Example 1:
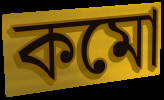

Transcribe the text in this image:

কমো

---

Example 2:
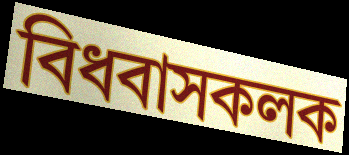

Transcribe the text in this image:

বিধবাসকলক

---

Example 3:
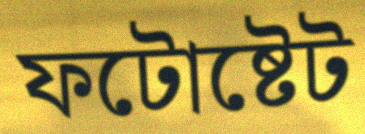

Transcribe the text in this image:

ফটোষ্টেট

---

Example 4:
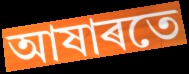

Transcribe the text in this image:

আষাৰতে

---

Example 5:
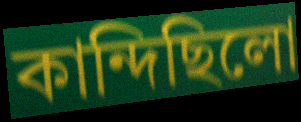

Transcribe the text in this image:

কান্দিছিলো